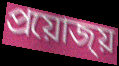
প্ৰয়োজ্য়